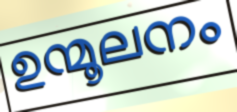
ഉന്മൂലനം